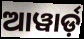
ଆୱାର୍ଡ଼